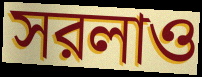
সরলাও